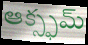
ఆక్స్ఫమ్